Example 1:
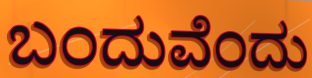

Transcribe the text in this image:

ಬಂದುವೆಂದು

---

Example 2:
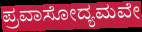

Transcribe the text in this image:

ಪ್ರವಾಸೋದ್ಯಮವೇ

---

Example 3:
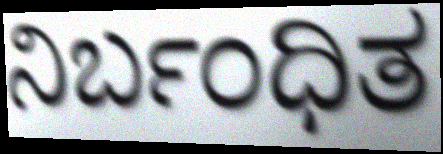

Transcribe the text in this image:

ನಿರ್ಬಂಧಿತ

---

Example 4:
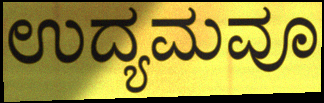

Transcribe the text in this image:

ಉದ್ಯಮವೂ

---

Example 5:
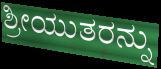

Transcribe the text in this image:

ಶ್ರೀಯುತರನ್ನು